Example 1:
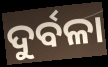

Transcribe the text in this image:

ଦୁର୍ବଳା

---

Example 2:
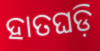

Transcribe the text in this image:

ହାତଘଡ଼ି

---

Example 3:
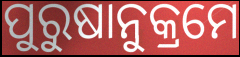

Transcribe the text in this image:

ପୁରୁଷାନୁକ୍ରମେ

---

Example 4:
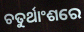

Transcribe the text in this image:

ଚତୁର୍ଥାଂଶରେ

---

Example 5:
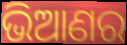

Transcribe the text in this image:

ଭିଆଣର